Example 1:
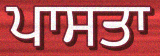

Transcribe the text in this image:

ਪਾਸਤਾ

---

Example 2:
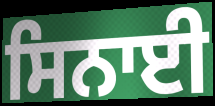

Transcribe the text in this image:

ਸਿਨਾਈ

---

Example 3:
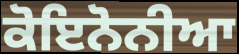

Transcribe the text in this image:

ਕੋਇਨੋਨੀਆ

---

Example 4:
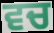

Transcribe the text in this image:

ਵਚ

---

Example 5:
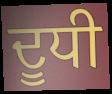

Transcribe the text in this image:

ਦੂਧੀ